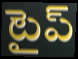
టైప్